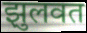
झुलवत